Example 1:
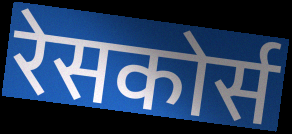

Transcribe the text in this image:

रेसकोर्स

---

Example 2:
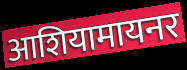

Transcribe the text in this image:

आशियामायनर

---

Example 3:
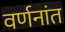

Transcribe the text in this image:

वर्णनांत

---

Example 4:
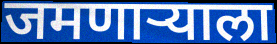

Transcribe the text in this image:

जमणाऱ्याला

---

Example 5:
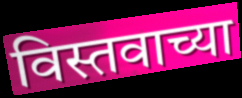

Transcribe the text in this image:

विस्तवाच्या